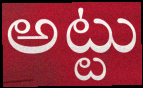
అట్టు